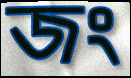
জং